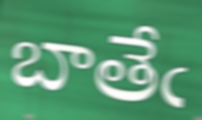
బాతేఁ